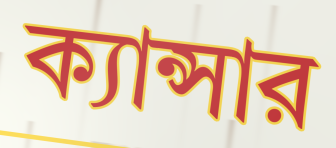
ক্যান্সার